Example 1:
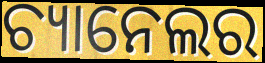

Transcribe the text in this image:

ଚ୍ୟାନେଲର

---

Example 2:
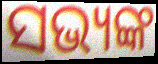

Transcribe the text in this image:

ସଭ୍ୟଙ୍କ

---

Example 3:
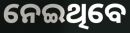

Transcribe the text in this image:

ନେଇଥିବେ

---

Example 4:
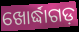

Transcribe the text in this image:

ଖୋର୍ଦ୍ଧାଗଡ଼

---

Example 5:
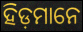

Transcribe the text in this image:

ହିଡ଼ମାନେ